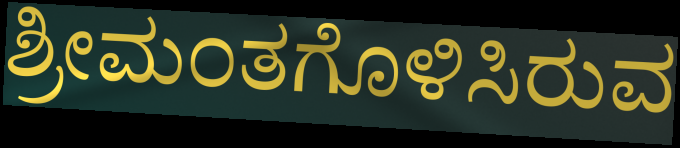
ಶ್ರೀಮಂತಗೊಳಿಸಿರುವ